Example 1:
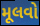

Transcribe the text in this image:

મૂલવો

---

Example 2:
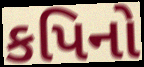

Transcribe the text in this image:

કપિનો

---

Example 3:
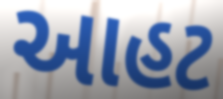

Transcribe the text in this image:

આહટ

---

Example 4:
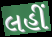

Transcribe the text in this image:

લહીં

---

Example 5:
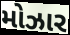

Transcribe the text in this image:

મોઝાર